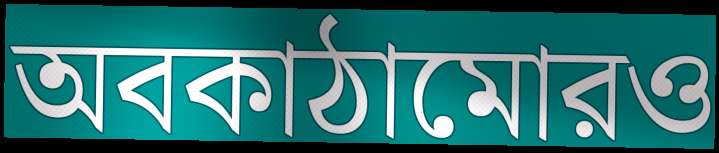
অবকাঠামোরও